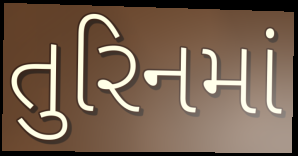
તુરિનમાં